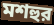
মশহুর